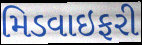
મિડવાઇફરી